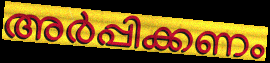
അർപ്പിക്കണം